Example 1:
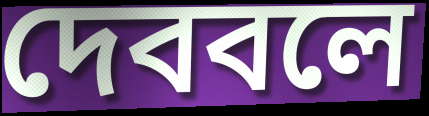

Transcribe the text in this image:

দেববলে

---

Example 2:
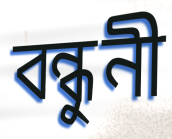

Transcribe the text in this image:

বন্ধুনী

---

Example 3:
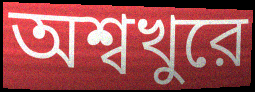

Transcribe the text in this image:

অশ্বখুরে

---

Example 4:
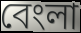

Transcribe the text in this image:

বেংলা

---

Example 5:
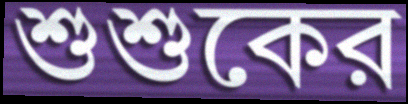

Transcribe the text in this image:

শুশুকের